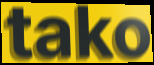
tako